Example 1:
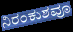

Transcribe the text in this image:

ನಿರಂಕುಶವೂ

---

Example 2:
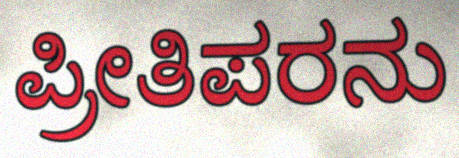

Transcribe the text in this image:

ಪ್ರೀತಿಪರನು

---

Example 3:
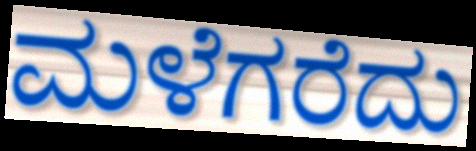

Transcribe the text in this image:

ಮಳೆಗರೆದು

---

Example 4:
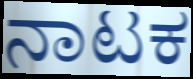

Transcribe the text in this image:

ನಾಟಕ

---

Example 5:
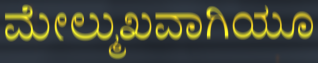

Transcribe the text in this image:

ಮೇಲ್ಮುಖವಾಗಿಯೂ